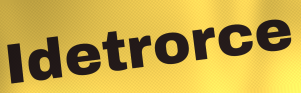
Idetrorce